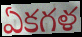
ఏకగళ